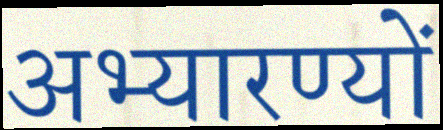
अभ्यारण्यों